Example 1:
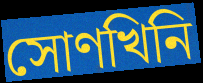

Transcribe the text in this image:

সোণখিনি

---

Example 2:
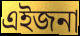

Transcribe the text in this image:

এইজনা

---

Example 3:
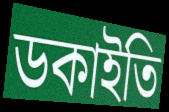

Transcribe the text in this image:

ডকাইতি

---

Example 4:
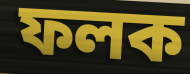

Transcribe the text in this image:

ফলক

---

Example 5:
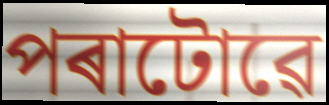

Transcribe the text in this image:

পৰাটোৱে